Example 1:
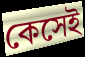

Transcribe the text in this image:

কেসেই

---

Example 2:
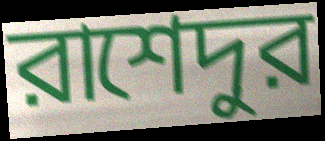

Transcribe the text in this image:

রাশেদুর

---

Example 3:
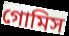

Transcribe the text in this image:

গোমিস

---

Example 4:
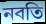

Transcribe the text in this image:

নবতি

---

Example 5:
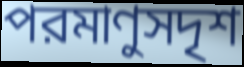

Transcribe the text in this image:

পরমাণুসদৃশ